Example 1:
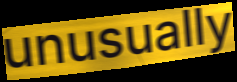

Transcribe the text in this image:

unusually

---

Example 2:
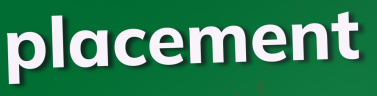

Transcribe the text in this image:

placement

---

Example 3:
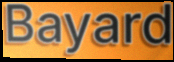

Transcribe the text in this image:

Bayard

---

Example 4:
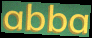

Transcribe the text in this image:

abba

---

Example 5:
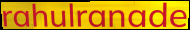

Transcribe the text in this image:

rahulranade